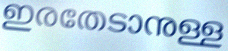
ഇരതേടാനുള്ള